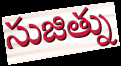
సుజిత్ను